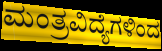
ಮಂತ್ರವಿದ್ಯೆಗಳಿಂದ